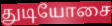
துடியோசை